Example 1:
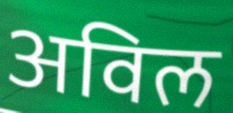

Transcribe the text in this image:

अविल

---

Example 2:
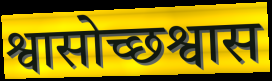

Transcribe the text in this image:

श्वासोच्छश्वास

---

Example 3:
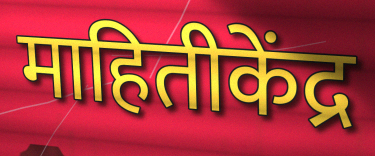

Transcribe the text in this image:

माहितीकेंद्र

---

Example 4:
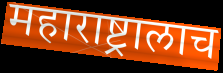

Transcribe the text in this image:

महाराष्ट्रालाच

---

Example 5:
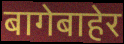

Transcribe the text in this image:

बागेबाहेर